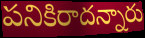
పనికిరాదన్నారు